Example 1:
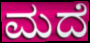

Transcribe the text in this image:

ಮದೆ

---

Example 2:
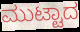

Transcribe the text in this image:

ಮುಟ್ಟಾದ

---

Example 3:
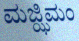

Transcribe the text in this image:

ಮಜ್ಝಿಮಂ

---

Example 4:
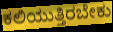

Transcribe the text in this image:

ಕಲಿಯುತ್ತಿರಬೇಕು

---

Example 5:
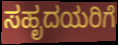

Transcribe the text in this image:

ಸಹೃದಯರಿಗೆ